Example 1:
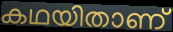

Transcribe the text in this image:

കഥയിതാണ്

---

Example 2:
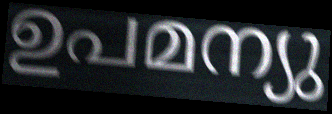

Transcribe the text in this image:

ഉപമന്യു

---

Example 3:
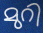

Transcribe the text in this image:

മുറി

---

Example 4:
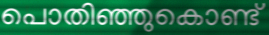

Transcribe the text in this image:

പൊതിഞ്ഞുകൊണ്ട്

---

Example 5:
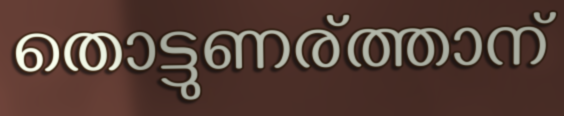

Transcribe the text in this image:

തൊട്ടുണര്ത്താന്